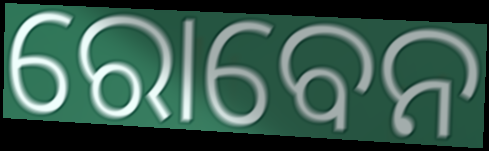
ରୋବେନ